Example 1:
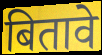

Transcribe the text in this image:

बितावे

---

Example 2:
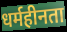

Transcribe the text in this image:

धर्महीनता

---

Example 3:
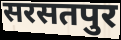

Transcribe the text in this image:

सरसतपुर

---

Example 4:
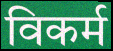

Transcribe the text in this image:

विकर्म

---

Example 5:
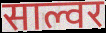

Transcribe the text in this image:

साल्वर